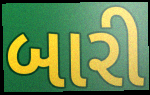
બારી